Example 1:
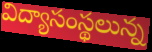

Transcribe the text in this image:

విద్యాసంస్థలున్న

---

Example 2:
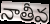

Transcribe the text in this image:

నాతీవ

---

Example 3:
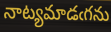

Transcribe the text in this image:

నాట్యమాడఁగను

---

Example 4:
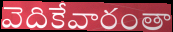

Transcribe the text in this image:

వెదికేవారంతా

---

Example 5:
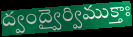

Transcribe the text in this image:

ద్వంద్వైర్విముక్తాః